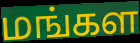
மங்கள